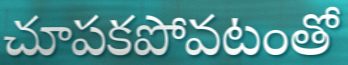
చూపకపోవటంతో